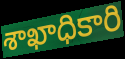
శాఖాధికారి